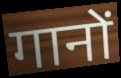
गानों